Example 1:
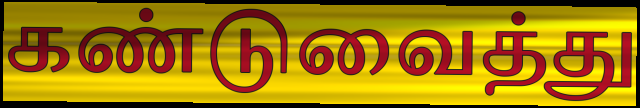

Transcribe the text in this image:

கண்டுவைத்து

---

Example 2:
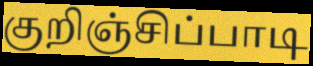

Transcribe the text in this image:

குறிஞ்சிப்பாடி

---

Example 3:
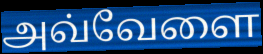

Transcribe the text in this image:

அவ்வேளை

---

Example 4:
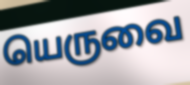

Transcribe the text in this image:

யெருவை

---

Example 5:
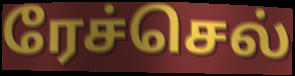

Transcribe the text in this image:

ரேச்செல்